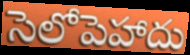
సెలోపెహాదు